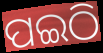
ପଇଠି